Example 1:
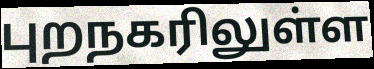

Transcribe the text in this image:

புறநகரிலுள்ள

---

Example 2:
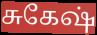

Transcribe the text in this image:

சுகேஷ்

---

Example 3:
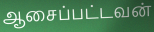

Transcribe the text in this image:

ஆசைப்பட்டவன்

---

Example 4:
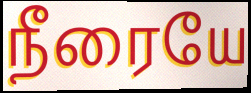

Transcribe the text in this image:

நீரையே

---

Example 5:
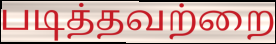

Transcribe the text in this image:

படித்தவற்றை